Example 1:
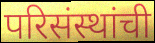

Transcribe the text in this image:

परिसंस्थांची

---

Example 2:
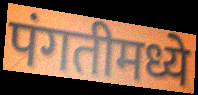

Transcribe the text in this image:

पंगतीमध्ये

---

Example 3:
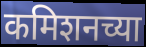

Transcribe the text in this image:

कमिशनच्या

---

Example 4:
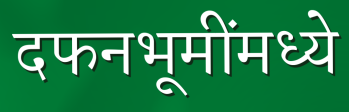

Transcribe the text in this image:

दफनभूमींमध्ये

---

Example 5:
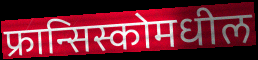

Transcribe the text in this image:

फ्रान्सिस्कोमधील